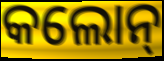
କଲୋନ୍